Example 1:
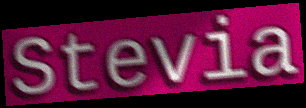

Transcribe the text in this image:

Stevia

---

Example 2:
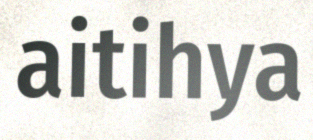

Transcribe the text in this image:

aitihya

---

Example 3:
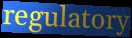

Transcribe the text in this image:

regulatory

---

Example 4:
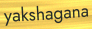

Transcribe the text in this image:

yakshagana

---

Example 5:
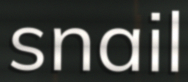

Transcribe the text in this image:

snail